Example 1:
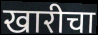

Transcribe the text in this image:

खारीचा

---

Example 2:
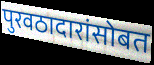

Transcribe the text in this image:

पुरवठादारांसोबत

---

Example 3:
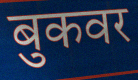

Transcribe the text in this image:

बुकवर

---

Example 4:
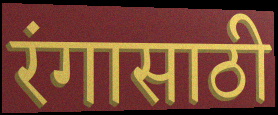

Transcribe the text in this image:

रंगासाठी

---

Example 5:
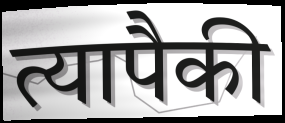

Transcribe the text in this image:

त्यापैकी